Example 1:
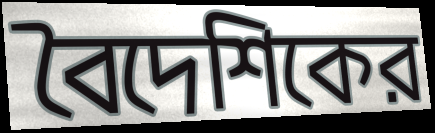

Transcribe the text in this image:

বৈদেশিকের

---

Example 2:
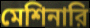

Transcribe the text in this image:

মেশিনারি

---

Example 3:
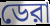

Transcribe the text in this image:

ডেরা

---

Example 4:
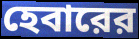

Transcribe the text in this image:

হেবারের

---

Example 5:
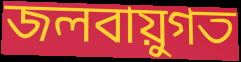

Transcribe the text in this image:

জলবায়ুগত